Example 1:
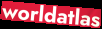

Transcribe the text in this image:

worldatlas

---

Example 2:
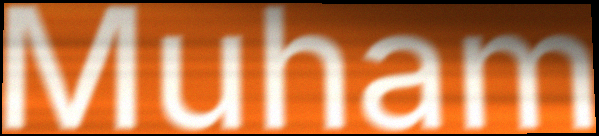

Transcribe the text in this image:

Muham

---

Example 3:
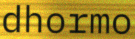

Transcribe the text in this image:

dhormo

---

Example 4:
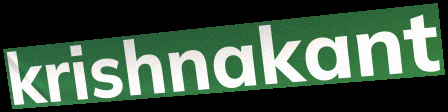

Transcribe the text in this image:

krishnakant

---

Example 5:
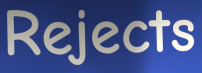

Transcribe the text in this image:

Rejects